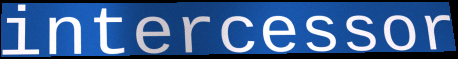
intercessor